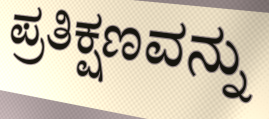
ಪ್ರತಿಕ್ಷಣವನ್ನು